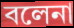
বলেনা